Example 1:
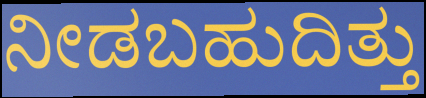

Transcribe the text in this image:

ನೀಡಬಹುದಿತ್ತು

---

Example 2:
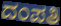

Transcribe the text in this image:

ದಂಪತಿ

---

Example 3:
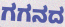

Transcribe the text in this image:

ಗಗನದ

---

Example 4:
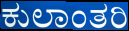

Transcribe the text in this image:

ಕುಲಾಂತರಿ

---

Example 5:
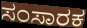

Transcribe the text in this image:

ಸಂಸಾರಕ